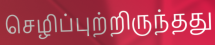
செழிப்புற்றிருந்தது